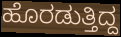
ಹೊರಡುತ್ತಿದ್ದ